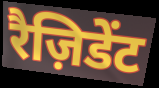
रैज़िडेंट